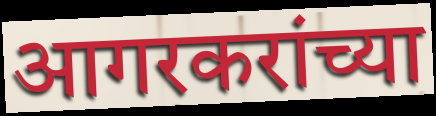
आगरकरांच्या